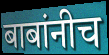
बाबांनीच